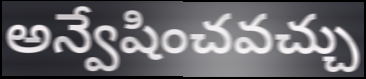
అన్వేషించవచ్చు